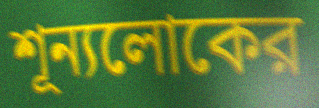
শূন্যলোকের